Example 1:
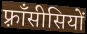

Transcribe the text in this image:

फ़्राँसीसियों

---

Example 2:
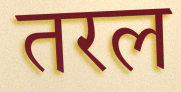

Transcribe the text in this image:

तरल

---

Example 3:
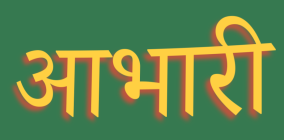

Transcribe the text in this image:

आभारी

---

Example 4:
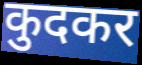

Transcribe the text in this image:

कुदकर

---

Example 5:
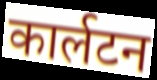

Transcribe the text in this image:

कार्लटन